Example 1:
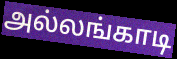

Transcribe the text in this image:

அல்லங்காடி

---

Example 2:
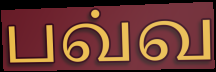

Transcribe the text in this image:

பவ்வ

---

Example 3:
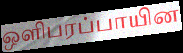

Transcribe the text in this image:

ஒளிபரப்பாயின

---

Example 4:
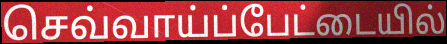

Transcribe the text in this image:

செவ்வாய்ப்பேட்டையில்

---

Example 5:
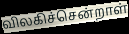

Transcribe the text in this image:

விலகிச்சென்றாள்